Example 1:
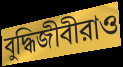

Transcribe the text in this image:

বুদ্ধিজীবীরাও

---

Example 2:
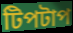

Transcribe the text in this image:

টিপটাপ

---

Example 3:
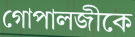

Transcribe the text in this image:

গোপালজীকে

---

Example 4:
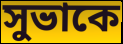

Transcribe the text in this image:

সুভাকে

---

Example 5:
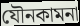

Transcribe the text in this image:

যৌনকামনা